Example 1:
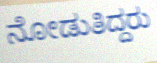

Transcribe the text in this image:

ನೋಡುತಿದ್ದರು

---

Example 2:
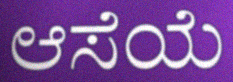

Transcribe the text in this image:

ಆಸೆಯೆ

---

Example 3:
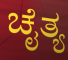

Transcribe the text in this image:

ಚೈತ್ಯ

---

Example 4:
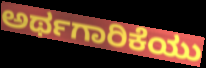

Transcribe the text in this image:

ಅರ್ಥಗಾರಿಕೆಯು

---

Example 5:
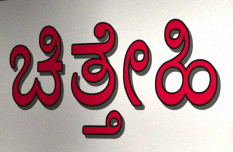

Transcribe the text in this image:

ಚಿತ್ತೇಹಿ